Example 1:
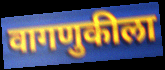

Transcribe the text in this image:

वागणुकीला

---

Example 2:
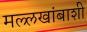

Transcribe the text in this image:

मल्लखांबाशी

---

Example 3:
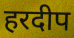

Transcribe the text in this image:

हरदीप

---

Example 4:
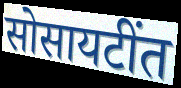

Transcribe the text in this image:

सोसायटींत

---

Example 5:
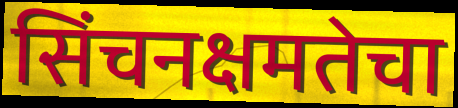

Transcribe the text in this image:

सिंचनक्षमतेचा